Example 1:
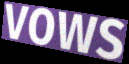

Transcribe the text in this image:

vows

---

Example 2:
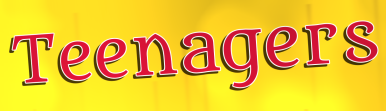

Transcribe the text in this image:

Teenagers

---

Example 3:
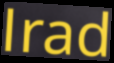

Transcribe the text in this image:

Irad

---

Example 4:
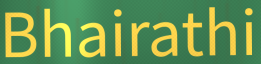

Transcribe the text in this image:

Bhairathi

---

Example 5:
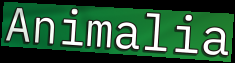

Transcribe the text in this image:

Animalia